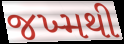
જખ્મથી